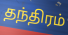
தந்திரம்